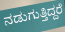
ನಡುಗುತ್ತಿದ್ದರೆ